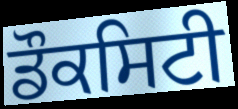
ਡੌਕਸਿਟੀ